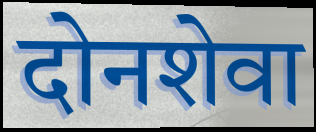
दोनशेवा